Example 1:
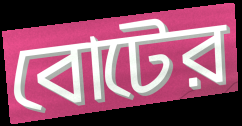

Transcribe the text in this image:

বোটের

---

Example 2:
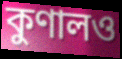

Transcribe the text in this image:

কুণালও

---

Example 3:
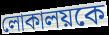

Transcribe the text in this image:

লোকালয়কে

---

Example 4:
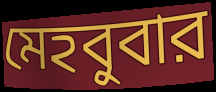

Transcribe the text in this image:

মেহবুবার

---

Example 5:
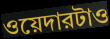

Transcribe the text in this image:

ওয়েদারটাও